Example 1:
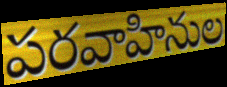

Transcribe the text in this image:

పరవాహినుల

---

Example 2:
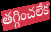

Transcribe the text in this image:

తగ్గించలేక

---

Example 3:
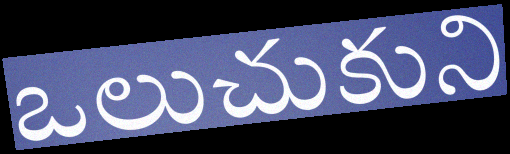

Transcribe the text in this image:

ఒలుచుకుని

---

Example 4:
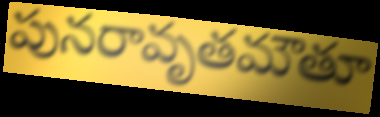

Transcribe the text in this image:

పునరావృతమౌతూ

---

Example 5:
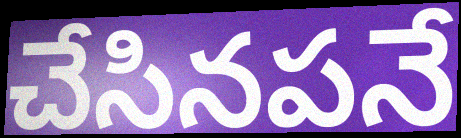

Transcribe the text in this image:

చేసినపనే